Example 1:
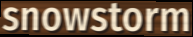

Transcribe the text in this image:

snowstorm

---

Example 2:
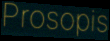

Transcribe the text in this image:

Prosopis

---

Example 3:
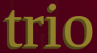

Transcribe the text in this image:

trio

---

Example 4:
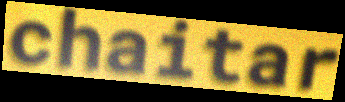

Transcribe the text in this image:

chaitar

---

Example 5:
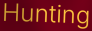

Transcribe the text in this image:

Hunting